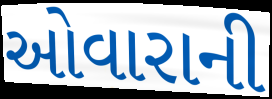
ઓવારાની